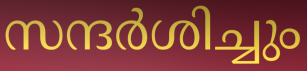
സന്ദർശിച്ചും